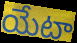
యేటా